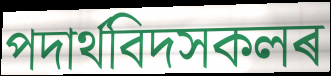
পদাৰ্থবিদসকলৰ